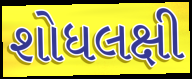
શોધલક્ષી